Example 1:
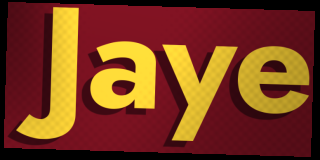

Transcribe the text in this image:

Jaye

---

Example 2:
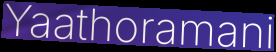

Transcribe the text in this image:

Yaathoramani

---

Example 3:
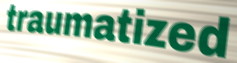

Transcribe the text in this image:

traumatized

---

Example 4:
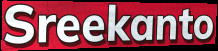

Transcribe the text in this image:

Sreekanto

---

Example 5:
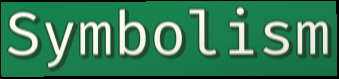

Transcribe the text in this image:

Symbolism